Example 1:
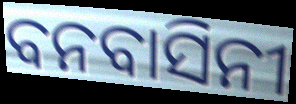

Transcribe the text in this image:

ବନବାସିନୀ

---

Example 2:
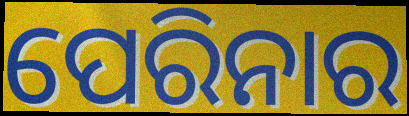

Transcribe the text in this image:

ପେରିନାର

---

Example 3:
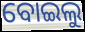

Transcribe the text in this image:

ବୋଇଲୁ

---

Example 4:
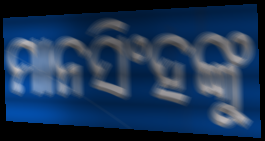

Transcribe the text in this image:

ମାନସିଂହଙ୍କୁ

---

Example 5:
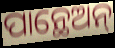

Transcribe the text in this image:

ପାନ୍ଥେଅନ୍